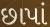
છાપાં